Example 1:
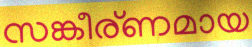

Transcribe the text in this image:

സങ്കീര്ണമായ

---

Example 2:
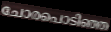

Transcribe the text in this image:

ചോരപൊടിഞ്ഞ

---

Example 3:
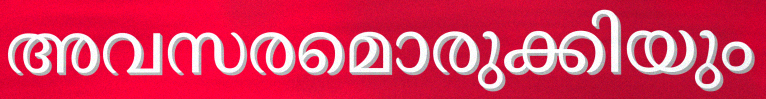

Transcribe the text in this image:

അവസരമൊരുക്കിയും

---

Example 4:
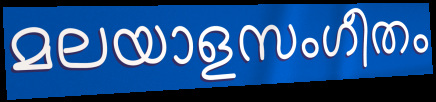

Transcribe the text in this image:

മലയാളസംഗീതം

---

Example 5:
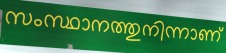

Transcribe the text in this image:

സംസ്ഥാനത്തുനിന്നാണ്